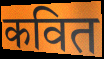
कवित